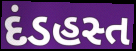
દંડહસ્ત